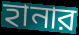
হানার